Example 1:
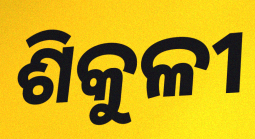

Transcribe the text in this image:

ଶିକୁଳୀ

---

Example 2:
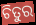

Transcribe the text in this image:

ଚିତୁର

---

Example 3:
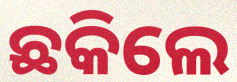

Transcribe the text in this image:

ଛକିଲେ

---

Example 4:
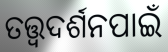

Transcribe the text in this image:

ତତ୍ତ୍ଵଦର୍ଶନପାଇଁ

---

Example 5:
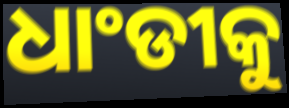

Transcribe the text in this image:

ଧାଂଡୀକୁ